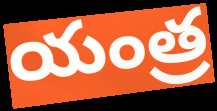
యంత్ర